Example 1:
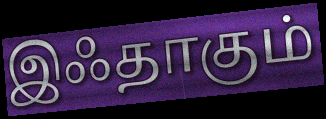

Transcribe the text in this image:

இஃதாகும்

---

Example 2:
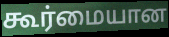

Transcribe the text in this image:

கூர்மையான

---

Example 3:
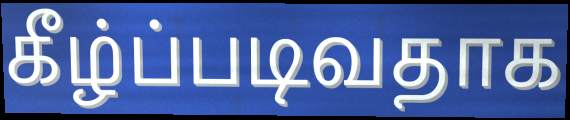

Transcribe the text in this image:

கீழ்ப்படிவதாக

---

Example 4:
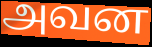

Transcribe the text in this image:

அவன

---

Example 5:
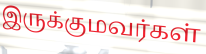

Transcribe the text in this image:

இருக்குமவர்கள்